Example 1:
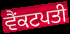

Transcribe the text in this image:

ਵੈਂਕਟਪਤੀ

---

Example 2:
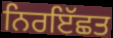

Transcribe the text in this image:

ਨਿਰਇੱਛਤ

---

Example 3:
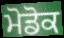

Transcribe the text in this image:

ਮੋਡੋਕ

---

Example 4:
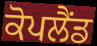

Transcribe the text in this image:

ਕੋਪਲੈਂਡ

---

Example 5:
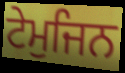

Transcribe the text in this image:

ਟੇਮੁਜਿਨ